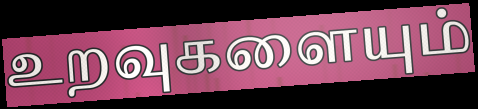
உறவுகளையும்